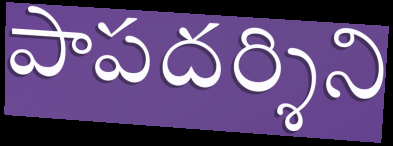
పాపదర్శిని